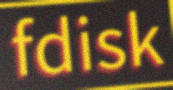
fdisk